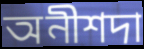
অনীশদা